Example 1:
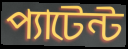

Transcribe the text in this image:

প্যাটেন্ট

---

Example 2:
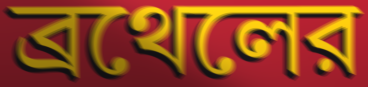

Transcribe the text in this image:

ব্রথেলের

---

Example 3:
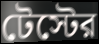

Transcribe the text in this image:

টেস্টের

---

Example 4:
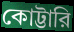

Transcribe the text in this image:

কোট্টারি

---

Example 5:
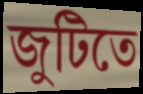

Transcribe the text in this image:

জুটিতে